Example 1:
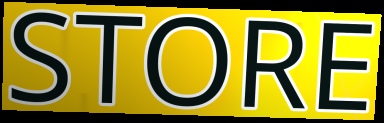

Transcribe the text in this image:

STORE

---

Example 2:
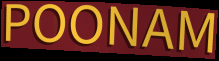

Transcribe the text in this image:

POONAM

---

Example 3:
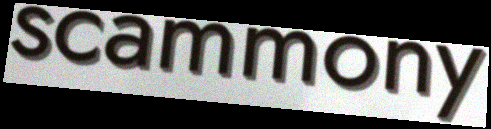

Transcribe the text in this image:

scammony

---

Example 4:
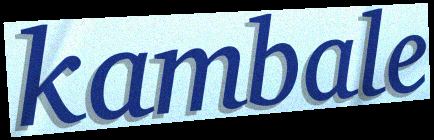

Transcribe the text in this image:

kambale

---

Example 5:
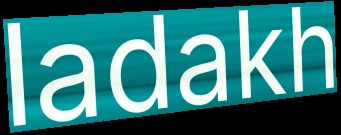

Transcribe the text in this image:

ladakh